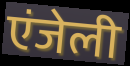
एंजेली